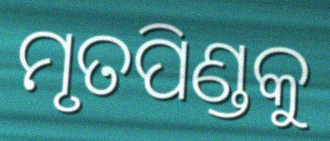
ମୃତପିଣ୍ଡକୁ